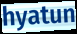
hyatun